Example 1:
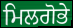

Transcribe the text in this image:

ਮਿਲਗੋਭੇ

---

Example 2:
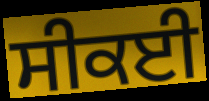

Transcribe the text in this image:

ਸੀਕਈ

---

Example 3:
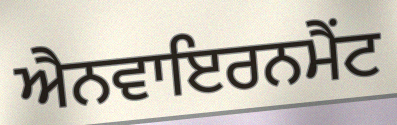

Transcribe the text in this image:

ਐਨਵਾਇਰਨਮੈਂਟ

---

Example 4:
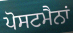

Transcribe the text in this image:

ਪੋਸਟਮੈਨਾਂ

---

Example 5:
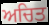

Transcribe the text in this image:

ਅਚਿਤ